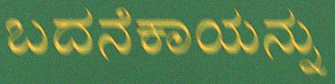
ಬದನೆಕಾಯನ್ನು